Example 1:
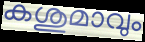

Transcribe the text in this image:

കശുമാവും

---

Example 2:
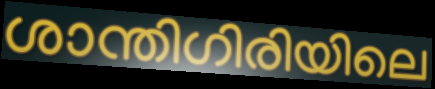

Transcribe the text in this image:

ശാന്തിഗിരിയിലെ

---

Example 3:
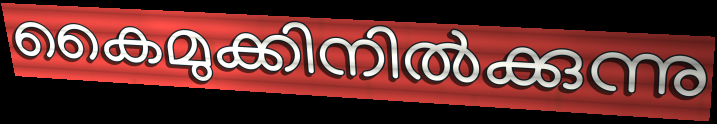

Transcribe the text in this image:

കൈമുക്കിനിൽക്കുന്നു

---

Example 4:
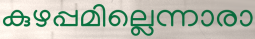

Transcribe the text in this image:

കുഴപ്പമില്ലെന്നാരാ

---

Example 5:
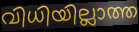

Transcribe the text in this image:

വിധിയില്ലാത്ത